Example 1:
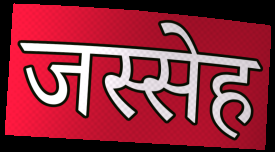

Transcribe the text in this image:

जस्सेह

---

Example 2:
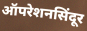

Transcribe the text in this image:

ऑपरेशनसिंदूर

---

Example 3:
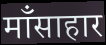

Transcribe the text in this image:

माँसाहार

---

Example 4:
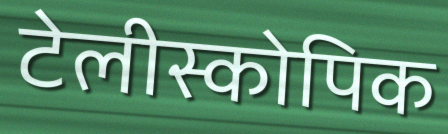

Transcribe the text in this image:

टेलीस्कोपिक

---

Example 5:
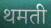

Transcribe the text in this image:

थमती